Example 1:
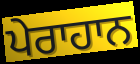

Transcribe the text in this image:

ਪੇਰਾਹਾਨ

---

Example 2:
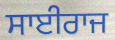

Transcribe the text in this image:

ਸਾਈਰਾਜ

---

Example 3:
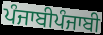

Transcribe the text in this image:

ਪੰਜਾਬੀਪੰਜਾਬੀ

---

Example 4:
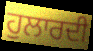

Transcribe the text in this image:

ਹੁਲਾਰਦੀ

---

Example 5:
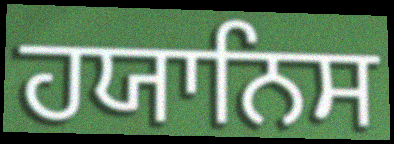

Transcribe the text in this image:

ਹਯਾਨਿਸ